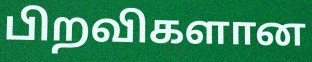
பிறவிகளான